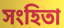
সংহিতা